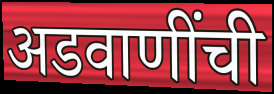
अडवाणींची